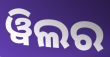
ୱିଲର